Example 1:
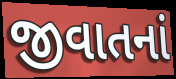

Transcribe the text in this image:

જીવાતનાં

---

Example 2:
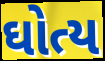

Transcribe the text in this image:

ઘોત્ય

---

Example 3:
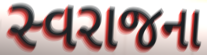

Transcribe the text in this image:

સ્વરાજના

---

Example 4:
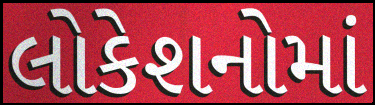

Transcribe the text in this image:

લોકેશનોમાં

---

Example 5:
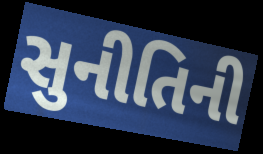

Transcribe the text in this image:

સુનીતિની